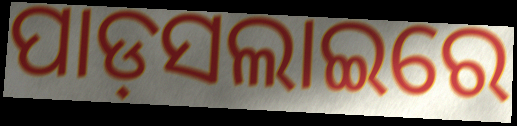
ପାଡ଼ସଲାଇରେ